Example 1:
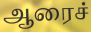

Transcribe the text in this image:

ஆரைச்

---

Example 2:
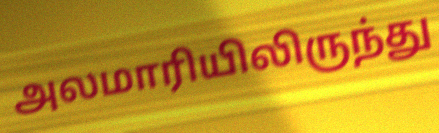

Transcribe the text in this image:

அலமாரியிலிருந்து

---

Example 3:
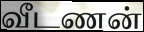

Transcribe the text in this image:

வீடணன்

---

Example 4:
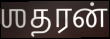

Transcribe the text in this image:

ஶதரன்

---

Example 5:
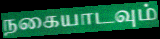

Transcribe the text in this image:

நகையாடவும்